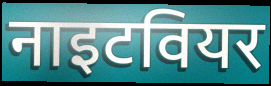
नाइटवियर